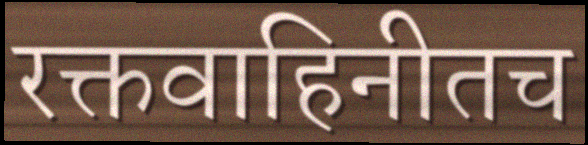
रक्तवाहिनीतच